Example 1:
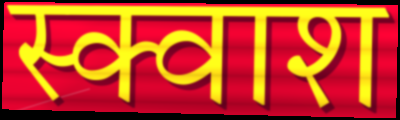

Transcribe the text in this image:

स्क्वाश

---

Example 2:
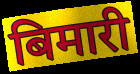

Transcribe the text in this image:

बिमारी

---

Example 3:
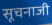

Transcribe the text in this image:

सूचनाजी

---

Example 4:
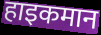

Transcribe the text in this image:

हाइकमान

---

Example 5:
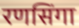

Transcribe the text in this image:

रणसिंगा